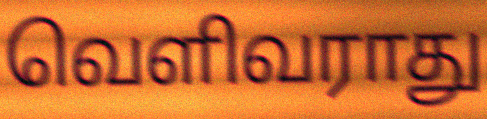
வெளிவராது